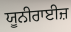
ਯੂਨੀਰਾਈਜ਼